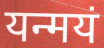
यन्मयं